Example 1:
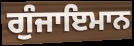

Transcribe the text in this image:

ਗੁੰਜਾਇਮਾਨ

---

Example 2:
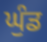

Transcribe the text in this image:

ਘੁੰਡ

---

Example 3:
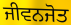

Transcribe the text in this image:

ਜੀਵਨਜੋਤ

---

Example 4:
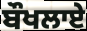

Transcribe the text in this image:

ਬੌਖਲਾਏ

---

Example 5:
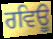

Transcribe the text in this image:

ਰਵਿਊ